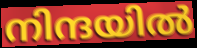
നിന്ദയിൽ